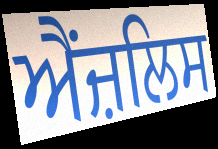
ਐਂਜ਼ਲਿਸ